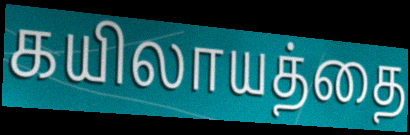
கயிலாயத்தை